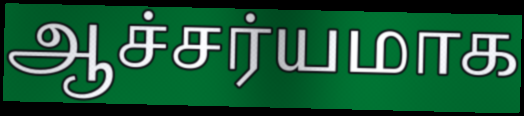
ஆச்சர்யமாக